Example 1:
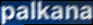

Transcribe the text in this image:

palkana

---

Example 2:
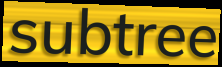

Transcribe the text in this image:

subtree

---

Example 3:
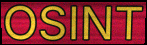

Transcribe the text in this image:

OSINT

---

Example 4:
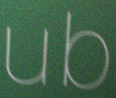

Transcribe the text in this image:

ub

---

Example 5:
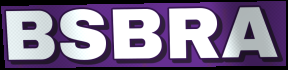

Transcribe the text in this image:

BSBRA